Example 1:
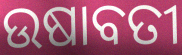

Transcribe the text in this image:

ଉଷାବତୀ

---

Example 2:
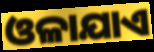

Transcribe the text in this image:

ଓଳାଯାଏ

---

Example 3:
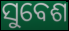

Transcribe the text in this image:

ସୁବେଶ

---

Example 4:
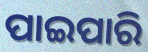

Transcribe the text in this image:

ପାଇପାରି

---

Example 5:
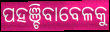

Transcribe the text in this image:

ପହଞ୍ଚିବାବେଳକୁ